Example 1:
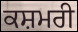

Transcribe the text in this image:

ਕਸ਼ਮਰੀ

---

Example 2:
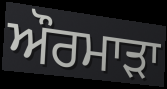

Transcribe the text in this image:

ਔਰਮਾੜਾ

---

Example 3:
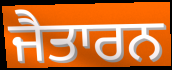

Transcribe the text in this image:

ਜੈਤਾਰਨ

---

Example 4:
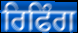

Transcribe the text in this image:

ਰਿਫਿੰਗ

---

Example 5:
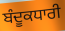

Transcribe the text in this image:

ਬੰਦੂਕਧਾਰੀ